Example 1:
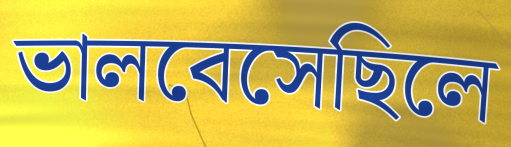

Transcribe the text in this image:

ভালবেসেছিলে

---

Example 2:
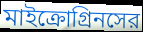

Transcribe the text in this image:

মাইক্রোগ্রিনসের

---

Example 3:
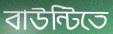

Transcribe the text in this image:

বাউন্টিতে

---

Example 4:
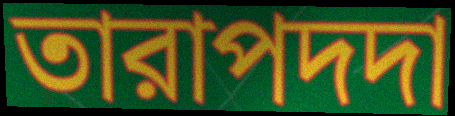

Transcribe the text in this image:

তারাপদদা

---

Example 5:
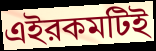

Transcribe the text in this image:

এইরকমটিই